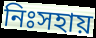
নিঃসহায়